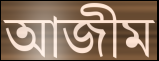
আজীম